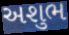
અશુભ